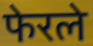
फेरले